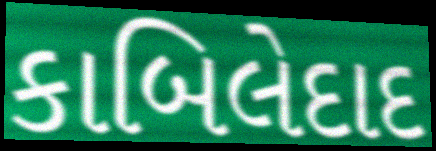
કાબિલેદાદ